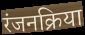
रंजनक्रिया